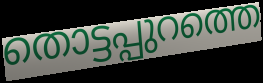
തൊട്ടപ്പുറത്തെ